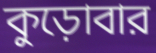
কুড়োবার